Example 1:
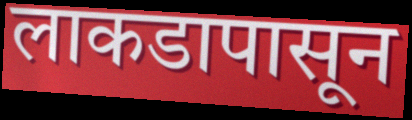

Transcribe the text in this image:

लाकडापासून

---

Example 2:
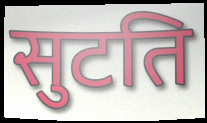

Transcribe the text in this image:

सुटति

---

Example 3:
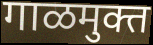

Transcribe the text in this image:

गाळमुक्त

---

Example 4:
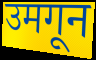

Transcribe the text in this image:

उमगून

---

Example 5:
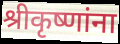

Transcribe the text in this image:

श्रीकृष्णांना